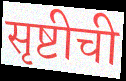
सृष्टीची